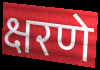
क्षरणे